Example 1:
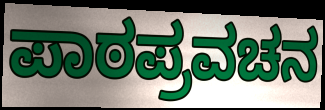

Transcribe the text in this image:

ಪಾಠಪ್ರವಚನ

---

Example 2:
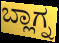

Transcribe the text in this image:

ಬ್ಲಾಗ್ನ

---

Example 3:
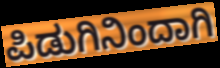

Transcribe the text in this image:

ಪಿಡುಗಿನಿಂದಾಗಿ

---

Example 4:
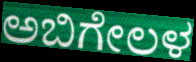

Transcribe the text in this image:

ಅಬಿಗೇಲಳ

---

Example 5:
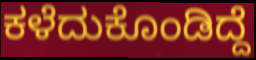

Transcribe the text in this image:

ಕಳೆದುಕೊಂಡಿದ್ದೆ